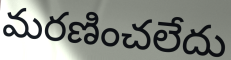
మరణించలేదు